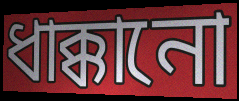
ধাক্কানো